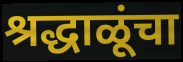
श्रद्धाळूंचा